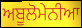
ਅਬੂਲੋਮੇਨੀਆ